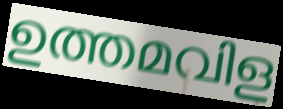
ഉത്തമവിള